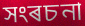
সংৰচনা